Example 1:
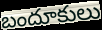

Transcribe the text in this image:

బందూకులు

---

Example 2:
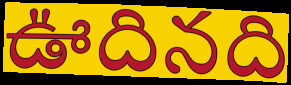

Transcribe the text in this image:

ఊదినది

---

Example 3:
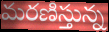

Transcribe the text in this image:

మరణిస్తున్న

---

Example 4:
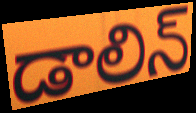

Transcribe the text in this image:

డాలిన్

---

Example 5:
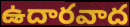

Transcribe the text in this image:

ఉదారవాద